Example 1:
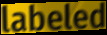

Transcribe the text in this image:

labeled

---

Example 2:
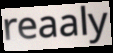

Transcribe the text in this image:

reaaly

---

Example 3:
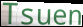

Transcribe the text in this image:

Tsuen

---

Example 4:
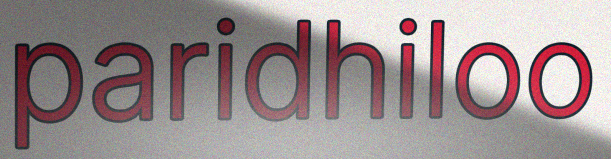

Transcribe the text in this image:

paridhiloo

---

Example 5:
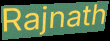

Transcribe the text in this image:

Rajnath